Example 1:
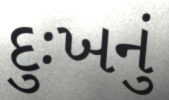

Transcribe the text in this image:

દુઃખનું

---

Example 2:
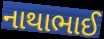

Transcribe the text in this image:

નાથાભાઈ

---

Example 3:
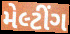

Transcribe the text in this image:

મેલ્ટીંગ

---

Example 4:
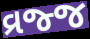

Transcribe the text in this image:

વ્રજ્જ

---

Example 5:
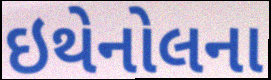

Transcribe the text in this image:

ઇથેનોલના